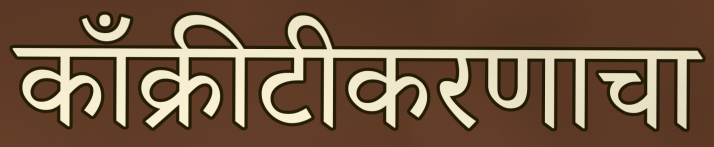
काँक्रीटीकरणाचा